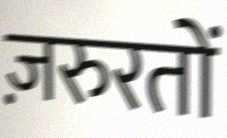
ज़रुरतों